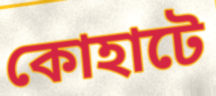
কোহাটে